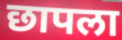
छापला